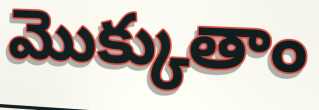
మొక్కుతాం